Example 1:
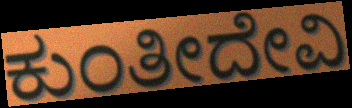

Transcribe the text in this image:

ಕುಂತೀದೇವಿ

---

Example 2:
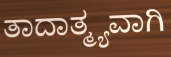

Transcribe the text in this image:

ತಾದಾತ್ಮ್ಯವಾಗಿ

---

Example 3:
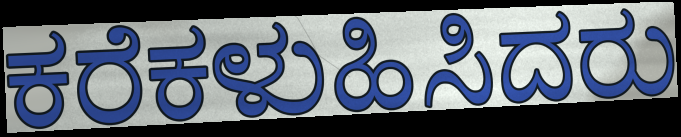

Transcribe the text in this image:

ಕರೆಕಳುಹಿಸಿದರು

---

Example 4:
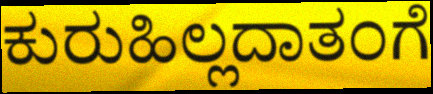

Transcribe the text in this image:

ಕುರುಹಿಲ್ಲದಾತಂಗೆ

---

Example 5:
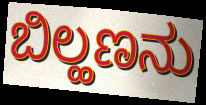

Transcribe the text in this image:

ಬಿಲ್ಹಣನು